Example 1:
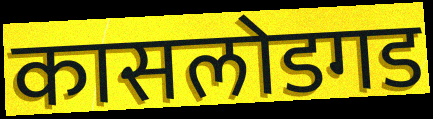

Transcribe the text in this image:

कासलोडगड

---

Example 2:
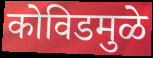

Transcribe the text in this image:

कोविडमुळे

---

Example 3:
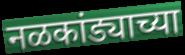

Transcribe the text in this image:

नळकांड्याच्या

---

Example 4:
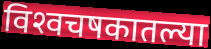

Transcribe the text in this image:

विश्वचषकातल्या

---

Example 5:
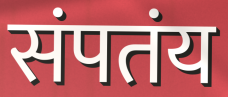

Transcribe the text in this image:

संपतंय